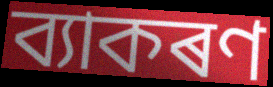
ব্যাকৰণ